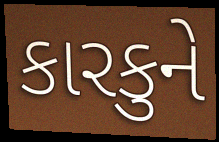
કારકુને